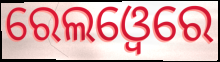
ରେଲଓ୍ୱେରେ